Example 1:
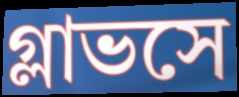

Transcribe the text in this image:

গ্লাভসে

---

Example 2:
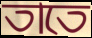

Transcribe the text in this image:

তাতে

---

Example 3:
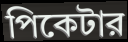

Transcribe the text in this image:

পিকেটার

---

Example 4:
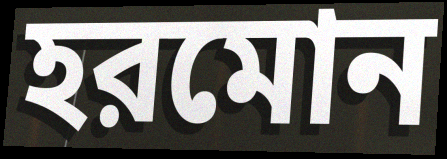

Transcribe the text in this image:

হরমোন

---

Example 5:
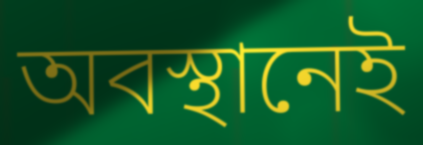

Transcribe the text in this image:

অবস্থানেই